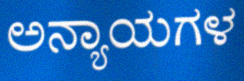
ಅನ್ಯಾಯಗಳ